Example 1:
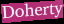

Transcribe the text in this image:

Doherty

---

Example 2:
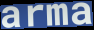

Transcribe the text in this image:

arma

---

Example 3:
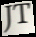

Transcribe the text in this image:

JT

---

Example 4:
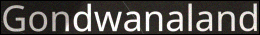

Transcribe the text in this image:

Gondwanaland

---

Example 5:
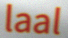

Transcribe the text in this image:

laal